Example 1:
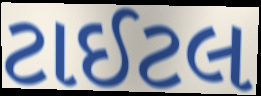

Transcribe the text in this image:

ટાઈટલ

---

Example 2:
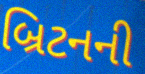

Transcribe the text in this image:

બ્રિટનની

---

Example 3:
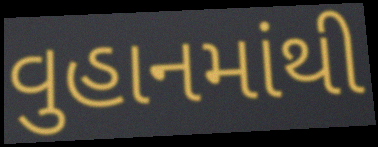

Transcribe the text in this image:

વુહાનમાંથી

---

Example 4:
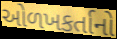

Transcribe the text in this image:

ઓળખકર્તાનો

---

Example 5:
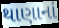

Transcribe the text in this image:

થાણાનાં